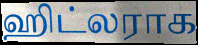
ஹிட்லராக